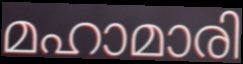
മഹാമാരി